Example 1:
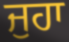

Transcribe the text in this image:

ਜੁਹਾ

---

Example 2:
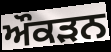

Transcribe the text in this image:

ਔਕੜਨ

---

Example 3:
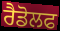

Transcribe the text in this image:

ਰੈਡੋਲਫ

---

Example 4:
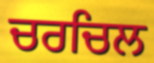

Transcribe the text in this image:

ਚਰਚਿਲ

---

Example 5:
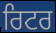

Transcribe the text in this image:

ਰਿਟਰ